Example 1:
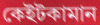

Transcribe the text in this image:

কেইটকামান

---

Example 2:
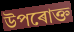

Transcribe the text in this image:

উপৰোক্ত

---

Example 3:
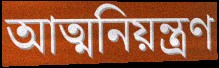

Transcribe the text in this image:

আত্মনিয়ন্ত্ৰণ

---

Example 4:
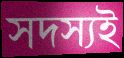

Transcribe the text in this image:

সদস্যই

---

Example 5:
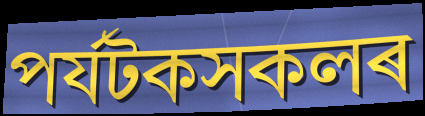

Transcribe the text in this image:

পৰ্যটকসকলৰ